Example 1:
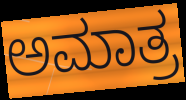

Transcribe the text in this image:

ಅಮಾತ್ರ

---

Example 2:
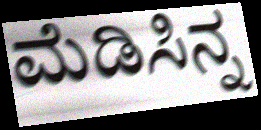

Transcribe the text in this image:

ಮೆಡಿಸಿನ್ನ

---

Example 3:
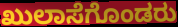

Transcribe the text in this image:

ಖುಲಾಸೆಗೊಂಡರು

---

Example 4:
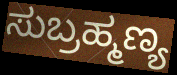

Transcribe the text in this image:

ಸುಬ್ರಹ್ಮಣ್ಯ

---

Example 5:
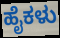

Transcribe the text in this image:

ಹೈಕಳು